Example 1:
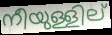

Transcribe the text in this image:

നീയുള്ളില്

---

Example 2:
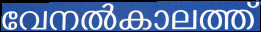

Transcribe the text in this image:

വേനൽകാലത്ത്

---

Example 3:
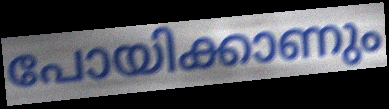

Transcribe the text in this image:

പോയിക്കാണും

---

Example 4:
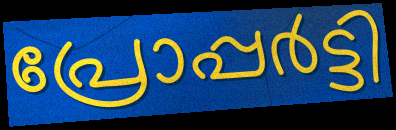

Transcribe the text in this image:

പ്രോപ്പർട്ടി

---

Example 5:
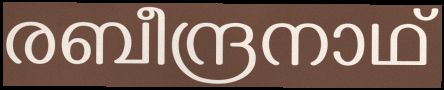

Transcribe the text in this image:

രബീന്ദ്രനാഥ്